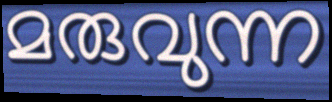
മരുവുന്ന